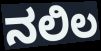
ನಲಿಲ